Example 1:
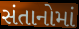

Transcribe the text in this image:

સંતાનોમાં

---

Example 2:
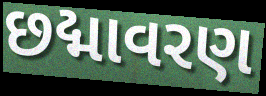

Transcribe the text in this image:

છદ્માવરણ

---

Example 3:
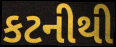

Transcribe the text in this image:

કટનીથી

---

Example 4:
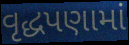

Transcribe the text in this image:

વૃદ્ધપણામાં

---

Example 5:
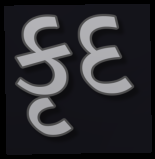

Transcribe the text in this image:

કૃદ